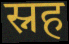
स्नह